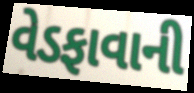
વેડફાવાની